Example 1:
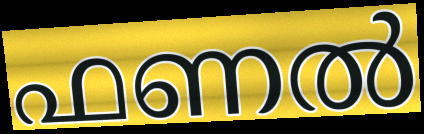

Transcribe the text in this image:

ഫണൽ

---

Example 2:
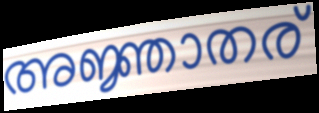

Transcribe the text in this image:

അജ്ഞാതര്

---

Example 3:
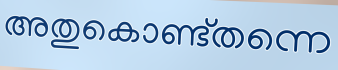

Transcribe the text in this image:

അതുകൊണ്ട്തന്നെ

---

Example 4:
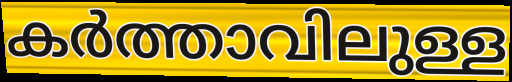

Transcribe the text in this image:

കർത്താവിലുള്ള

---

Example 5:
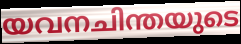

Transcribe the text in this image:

യവനചിന്തയുടെ